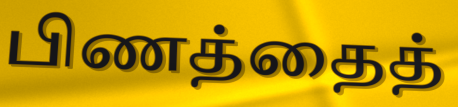
பிணத்தைத்